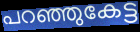
പറഞ്ഞുകേട്ട